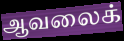
ஆவலைக்